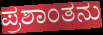
ಪ್ರಶಾಂತನು